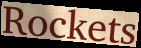
Rockets